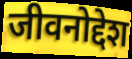
जीवनोद्देश